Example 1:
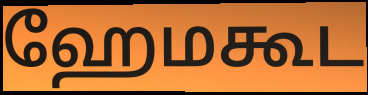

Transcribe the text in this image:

ஹேமகூட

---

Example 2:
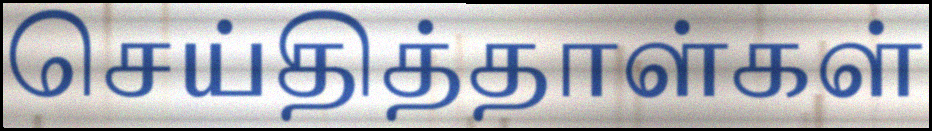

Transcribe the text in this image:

செய்தித்தாள்கள்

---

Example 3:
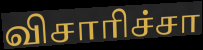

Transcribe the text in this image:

விசாரிச்சா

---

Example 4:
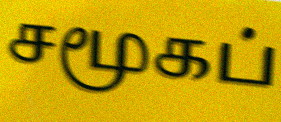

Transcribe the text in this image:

சமூகப்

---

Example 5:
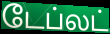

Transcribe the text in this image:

டேப்லட்